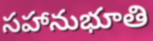
సహానుభూతి